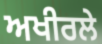
ਅਖੀਰਲੇ